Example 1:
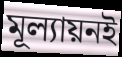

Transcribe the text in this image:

মূল্যায়নই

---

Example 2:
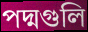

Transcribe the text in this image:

পদ্মগুলি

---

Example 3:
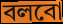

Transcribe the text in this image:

বলবো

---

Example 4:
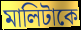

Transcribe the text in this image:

মালিটাকে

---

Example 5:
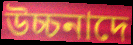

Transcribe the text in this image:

উচ্চনাদে